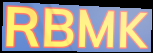
RBMK